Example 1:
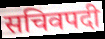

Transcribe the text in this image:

सचिवपदी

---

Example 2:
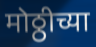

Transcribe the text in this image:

मोठ्ठीच्या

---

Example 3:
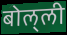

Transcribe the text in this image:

बोल्ली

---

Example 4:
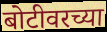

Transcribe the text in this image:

बोटीवरच्या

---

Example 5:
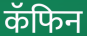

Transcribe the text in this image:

कॅफिन